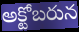
అక్టోబరున